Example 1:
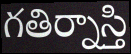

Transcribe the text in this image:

గతిర్నాస్తి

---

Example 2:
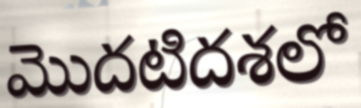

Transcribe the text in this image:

మొదటిదశలో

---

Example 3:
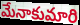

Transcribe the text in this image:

మేనాకుమారి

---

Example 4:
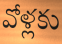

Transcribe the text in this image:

వోళ్లకు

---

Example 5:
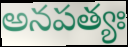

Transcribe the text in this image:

అనపత్యః